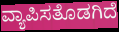
ವ್ಯಾಪಿಸತೊಡಗಿದೆ